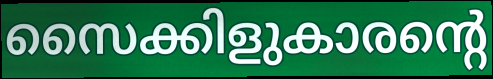
സൈക്കിളുകാരന്റെ